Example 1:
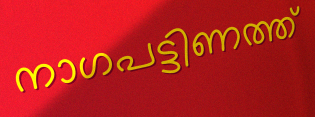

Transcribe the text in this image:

നാഗപട്ടിണത്ത്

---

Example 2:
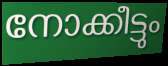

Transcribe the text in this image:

നോക്കീട്ടും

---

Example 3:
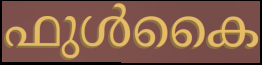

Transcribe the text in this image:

ഫുൾകൈ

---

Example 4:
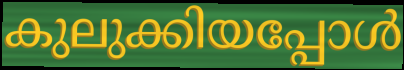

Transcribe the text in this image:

കുലുക്കിയപ്പോൾ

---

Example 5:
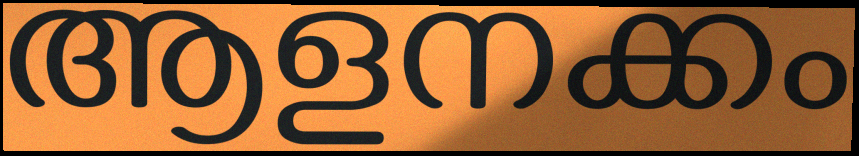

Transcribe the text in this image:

ആളനക്കം